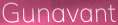
Gunavant